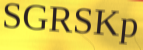
SGRSKp